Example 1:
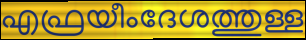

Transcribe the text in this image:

എഫ്രയീംദേശത്തുള്ള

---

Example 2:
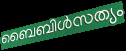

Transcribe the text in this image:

ബൈബിൾസത്യം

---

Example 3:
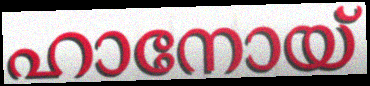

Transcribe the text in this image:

ഹാനോയ്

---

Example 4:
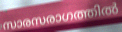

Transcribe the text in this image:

സാരസരാഗത്തിൽ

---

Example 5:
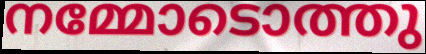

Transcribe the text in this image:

നമ്മോടൊത്തു